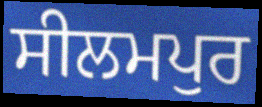
ਸੀਲਮਪੁਰ